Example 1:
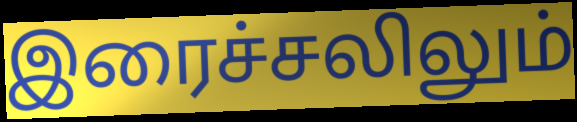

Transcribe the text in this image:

இரைச்சலிலும்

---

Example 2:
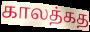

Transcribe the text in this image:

காலத்கத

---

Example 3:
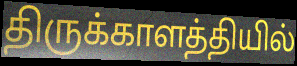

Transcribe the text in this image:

திருக்காளத்தியில்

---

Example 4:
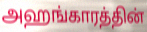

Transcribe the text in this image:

அஹங்காரத்தின்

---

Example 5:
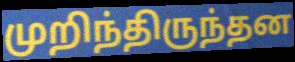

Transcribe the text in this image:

முறிந்திருந்தன